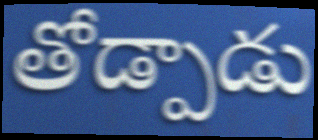
తోడ్పాడు